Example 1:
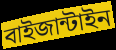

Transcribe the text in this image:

বাইজান্টাইন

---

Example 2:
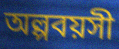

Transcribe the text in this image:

অল্পবয়সী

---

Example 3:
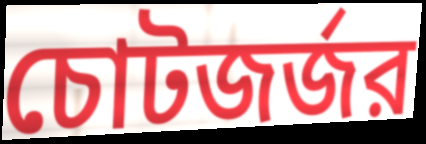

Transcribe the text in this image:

চোটজর্জর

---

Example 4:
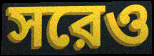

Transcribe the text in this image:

সরেও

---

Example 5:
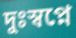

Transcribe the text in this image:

দুঃস্বপ্নে